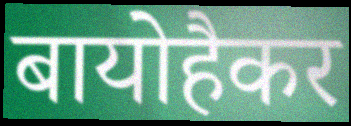
बायोहैकर